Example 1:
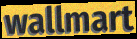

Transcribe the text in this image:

wallmart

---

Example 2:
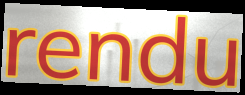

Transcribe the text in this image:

rendu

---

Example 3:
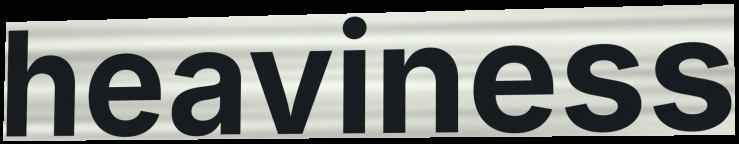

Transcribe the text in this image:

heaviness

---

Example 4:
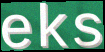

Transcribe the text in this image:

eks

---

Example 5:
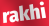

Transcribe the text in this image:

rakhi